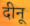
दीनू